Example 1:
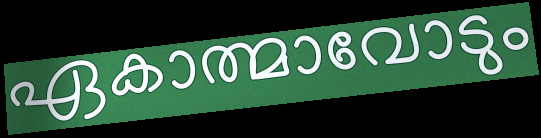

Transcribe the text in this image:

ഏകാത്മാവോടും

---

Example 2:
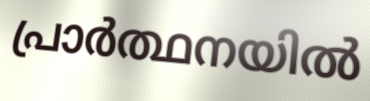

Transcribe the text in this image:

പ്രാർത്ഥനയിൽ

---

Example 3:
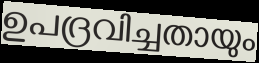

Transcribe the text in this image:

ഉപദ്രവിച്ചതായും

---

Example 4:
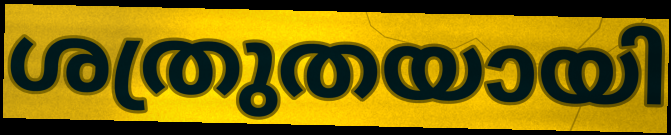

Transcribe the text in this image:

ശത്രുതയായി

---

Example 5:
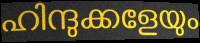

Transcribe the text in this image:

ഹിന്ദുക്കളേയും